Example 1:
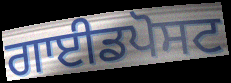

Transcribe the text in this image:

ਗਾਈਡਪੋਸਟ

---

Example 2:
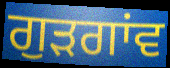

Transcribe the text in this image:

ਗੁਡ਼ਗਾਂਵ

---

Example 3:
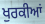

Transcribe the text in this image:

ਖੁਰਕੀਆਂ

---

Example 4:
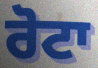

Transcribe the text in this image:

ਰੋਟਾ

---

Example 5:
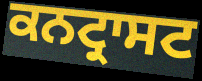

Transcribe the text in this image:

ਕਨਟ੍ਰਾਸਟ